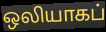
ஒலியாகப்